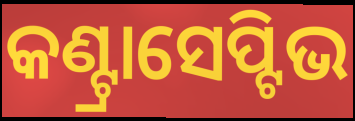
କଣ୍ଟ୍ରାସେପ୍ଟିଭ